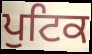
ਪੁਟਿਕ